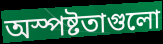
অস্পষ্টতাগুলো